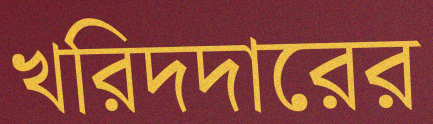
খরিদদারের